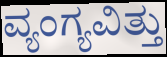
ವ್ಯಂಗ್ಯವಿತ್ತು